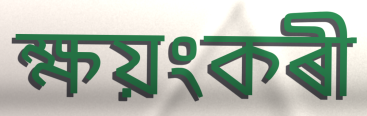
ক্ষয়ংকৰী